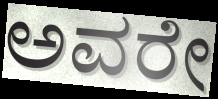
ಅವರೇ